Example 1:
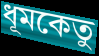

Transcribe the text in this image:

ধূমকেতু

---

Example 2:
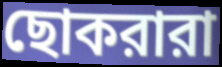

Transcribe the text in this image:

ছোকরারা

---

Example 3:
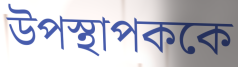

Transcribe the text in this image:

উপস্থাপককে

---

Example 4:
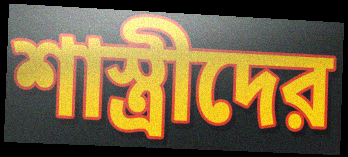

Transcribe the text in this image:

শাস্ত্রীদের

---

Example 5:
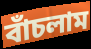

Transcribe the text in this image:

বাঁচলাম